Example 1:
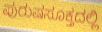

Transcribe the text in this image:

ಪುರುಷಸೂಕ್ತದಲ್ಲಿ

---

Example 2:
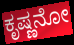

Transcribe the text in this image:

ಕೃಷ್ಣನೋ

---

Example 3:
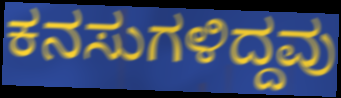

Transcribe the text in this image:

ಕನಸುಗಳಿದ್ದವು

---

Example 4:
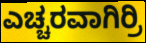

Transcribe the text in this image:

ಎಚ್ಚರವಾಗಿರ್ರಿ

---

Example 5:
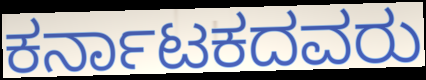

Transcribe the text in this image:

ಕರ್ನಾಟಕದವರು